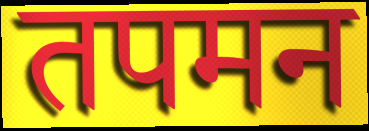
तपमन